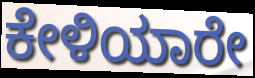
ಕೇಳಿಯಾರೇ